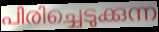
പിരിച്ചെടുക്കുന്ന